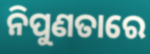
ନିପୁଣତାରେ